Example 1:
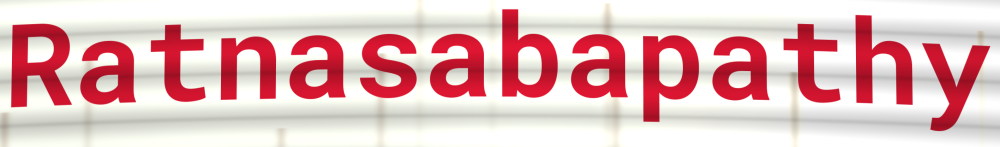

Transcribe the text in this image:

Ratnasabapathy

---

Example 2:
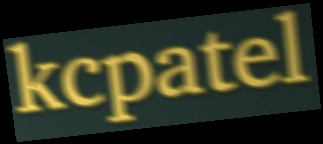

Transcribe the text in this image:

kcpatel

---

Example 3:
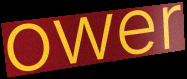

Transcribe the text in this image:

ower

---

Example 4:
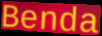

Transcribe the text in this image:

Benda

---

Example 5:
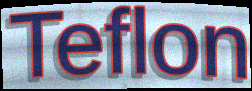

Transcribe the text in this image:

Teflon